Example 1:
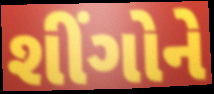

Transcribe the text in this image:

શીંગોને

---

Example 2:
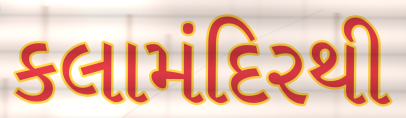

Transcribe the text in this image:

કલામંદિરથી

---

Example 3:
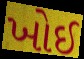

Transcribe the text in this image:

ખોઈ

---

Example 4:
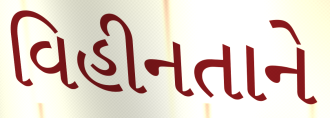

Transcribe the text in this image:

વિહીનતાને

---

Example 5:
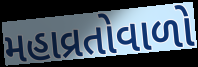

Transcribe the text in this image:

મહાવ્રતોવાળો